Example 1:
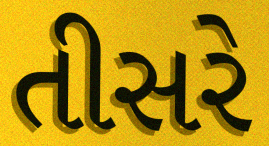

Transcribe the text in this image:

તીસરે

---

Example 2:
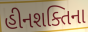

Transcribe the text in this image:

હીનશક્તિના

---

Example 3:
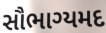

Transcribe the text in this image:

સૌભાગ્યમદ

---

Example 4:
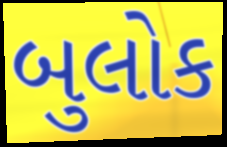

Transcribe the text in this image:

બુલોક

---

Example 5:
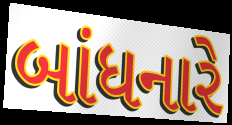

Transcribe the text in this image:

બાંધનારે